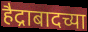
हैद्राबादच्या